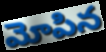
మోపిన